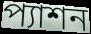
প্যাশন